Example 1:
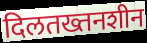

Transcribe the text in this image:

दिलतख्तनशीन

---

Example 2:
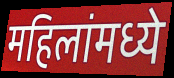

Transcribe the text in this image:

महिलांमध्ये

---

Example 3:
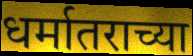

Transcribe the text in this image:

धर्मातराच्या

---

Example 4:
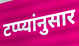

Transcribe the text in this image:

टप्प्यांनुसार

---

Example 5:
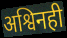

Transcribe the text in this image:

अश्विनही